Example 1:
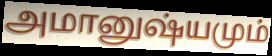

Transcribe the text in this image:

அமானுஷ்யமும்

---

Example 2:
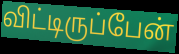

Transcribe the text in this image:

விட்டிருப்பேன்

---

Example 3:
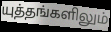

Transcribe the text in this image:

யுத்தங்களிலும்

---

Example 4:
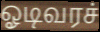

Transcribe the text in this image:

ஓடிவரச்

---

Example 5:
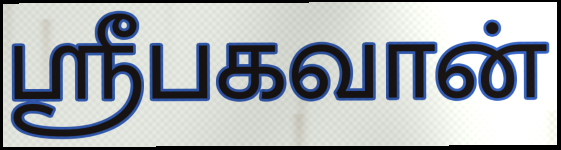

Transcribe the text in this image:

ஸ்ரீபகவான்